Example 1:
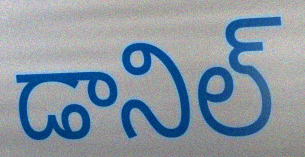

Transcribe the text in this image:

డానిల్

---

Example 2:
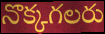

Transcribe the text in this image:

నొక్కగలరు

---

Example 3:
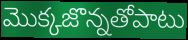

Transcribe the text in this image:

మొక్కజొన్నతోపాటు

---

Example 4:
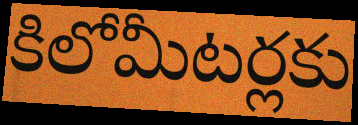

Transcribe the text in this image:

కిలోమీటర్లకు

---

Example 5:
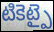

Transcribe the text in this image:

టికెట్పై